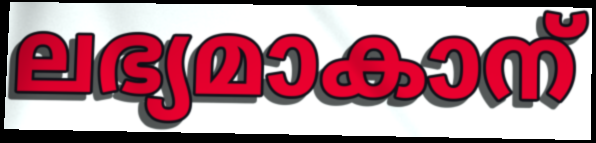
ലഭ്യമാകാന്